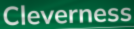
Cleverness